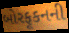
બોરફૂકનની